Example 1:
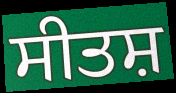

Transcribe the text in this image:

ਸੀਤਸ਼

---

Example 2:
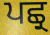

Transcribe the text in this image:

ਪਛ੍ਰ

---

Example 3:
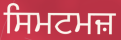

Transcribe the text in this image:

ਸਿਮਟਮਜ਼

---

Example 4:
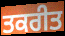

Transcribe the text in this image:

ਤਕਰੀਤ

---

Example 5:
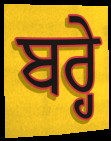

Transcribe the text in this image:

ਬਰ੍ਹੇ